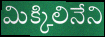
మిక్కిలినేని